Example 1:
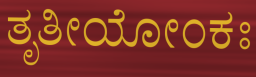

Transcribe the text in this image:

ತೃತೀಯೋಂಕಃ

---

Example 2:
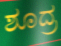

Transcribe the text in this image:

ಶೂದ್ರ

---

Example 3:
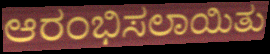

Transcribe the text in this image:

ಆರಂಭಿಸಲಾಯಿತು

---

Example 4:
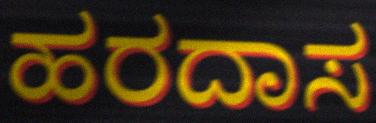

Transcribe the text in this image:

ಹರದಾಸ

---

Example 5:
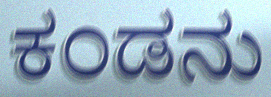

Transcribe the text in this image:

ಕಂಡನು